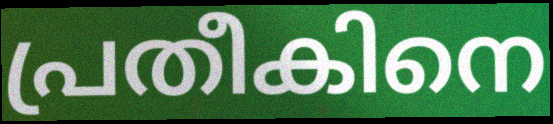
പ്രതീകിനെ